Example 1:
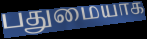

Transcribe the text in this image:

பதுமையாக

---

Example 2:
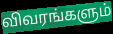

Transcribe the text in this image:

விவரங்களும்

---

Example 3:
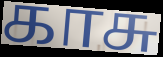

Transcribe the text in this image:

காசு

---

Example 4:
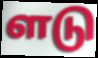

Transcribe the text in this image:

ளடு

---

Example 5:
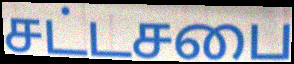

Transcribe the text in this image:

சட்டசபை